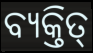
ବ୍ୟକ୍ତିତ୍